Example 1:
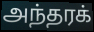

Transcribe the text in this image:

அந்தரக்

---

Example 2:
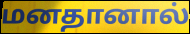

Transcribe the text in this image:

மனதானால்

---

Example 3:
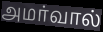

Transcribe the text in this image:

அமர்வால்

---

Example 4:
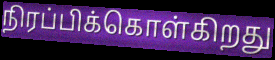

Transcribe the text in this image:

நிரப்பிக்கொள்கிறது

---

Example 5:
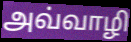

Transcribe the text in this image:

அவ்வாழி